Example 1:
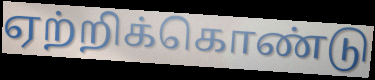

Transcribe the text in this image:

ஏற்றிக்கொண்டு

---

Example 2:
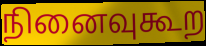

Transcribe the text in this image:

நினைவுகூற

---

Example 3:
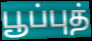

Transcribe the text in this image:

பூப்புத்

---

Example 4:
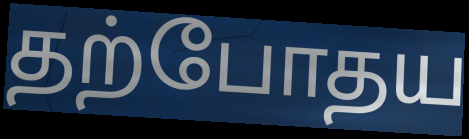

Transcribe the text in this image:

தற்போதய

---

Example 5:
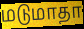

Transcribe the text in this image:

மடுமாதா